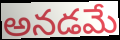
అనడమే